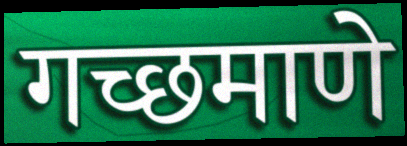
गच्छमाणे